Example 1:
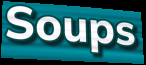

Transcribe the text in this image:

Soups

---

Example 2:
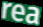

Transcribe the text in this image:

rea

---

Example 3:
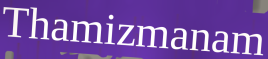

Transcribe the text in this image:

Thamizmanam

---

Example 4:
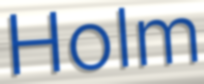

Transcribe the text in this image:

Holm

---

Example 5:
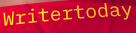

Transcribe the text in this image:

Writertoday